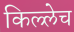
किल्लेच